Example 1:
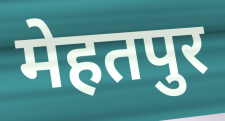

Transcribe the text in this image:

मेहतपुर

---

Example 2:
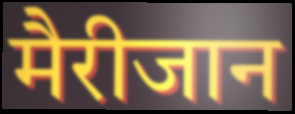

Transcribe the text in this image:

मैरीजान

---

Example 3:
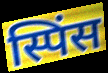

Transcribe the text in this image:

स्पिंस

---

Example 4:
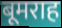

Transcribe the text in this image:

बूमराह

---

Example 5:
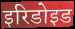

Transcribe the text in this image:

इरिडोइड